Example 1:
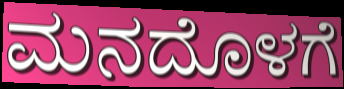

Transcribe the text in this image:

ಮನದೊಳಗೆ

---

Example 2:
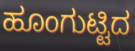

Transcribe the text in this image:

ಹೂಂಗುಟ್ಟಿದ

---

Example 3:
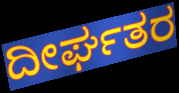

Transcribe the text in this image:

ದೀರ್ಘತರ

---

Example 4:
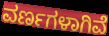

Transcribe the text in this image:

ವರ್ಣಗಳಾಗಿವೆ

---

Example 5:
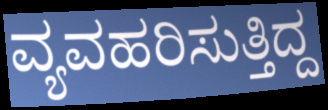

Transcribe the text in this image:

ವ್ಯವಹರಿಸುತ್ತಿದ್ದ